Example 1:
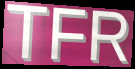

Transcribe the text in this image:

TFR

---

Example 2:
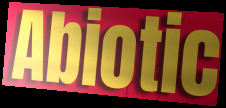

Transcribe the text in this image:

Abiotic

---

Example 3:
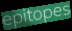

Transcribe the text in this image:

epitopes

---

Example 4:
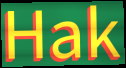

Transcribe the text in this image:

Hak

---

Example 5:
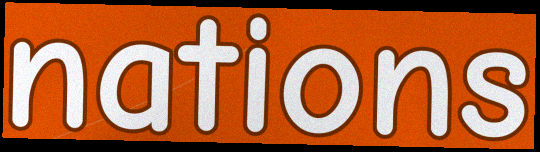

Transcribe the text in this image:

nations